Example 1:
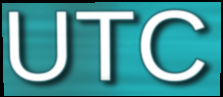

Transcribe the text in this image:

UTC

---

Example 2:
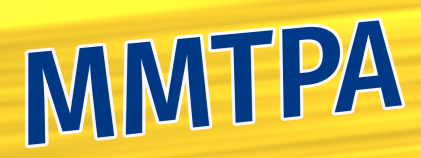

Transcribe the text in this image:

MMTPA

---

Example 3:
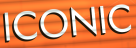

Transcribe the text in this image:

ICONIC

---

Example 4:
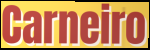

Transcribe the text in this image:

Carneiro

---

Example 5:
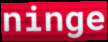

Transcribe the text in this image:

ninge